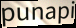
punapi